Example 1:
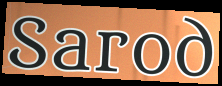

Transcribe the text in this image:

Sarod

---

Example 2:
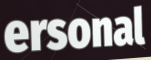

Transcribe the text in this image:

ersonal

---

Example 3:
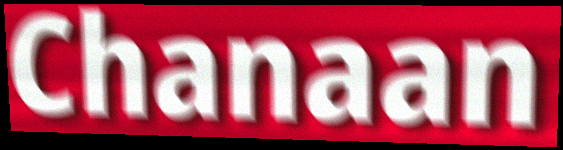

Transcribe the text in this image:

Chanaan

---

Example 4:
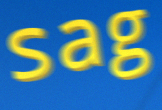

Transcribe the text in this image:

sag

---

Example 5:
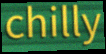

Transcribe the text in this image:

chilly